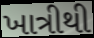
ખાત્રીથી